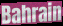
Bahrain